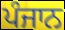
ਪੰਜਾਨ